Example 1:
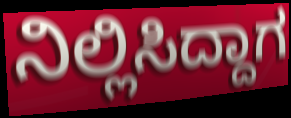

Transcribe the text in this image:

ನಿಲ್ಲಿಸಿದ್ದಾಗ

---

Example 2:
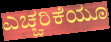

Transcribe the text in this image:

ಎಚ್ಚರಿಕೆಯೂ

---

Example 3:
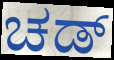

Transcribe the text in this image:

ಚಡ್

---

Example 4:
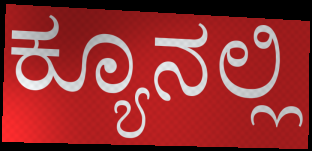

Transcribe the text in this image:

ಕ್ಯೂನಲ್ಲಿ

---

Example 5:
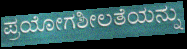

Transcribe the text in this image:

ಪ್ರಯೋಗಶೀಲತೆಯನ್ನು